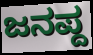
ಜನಪ್ದ